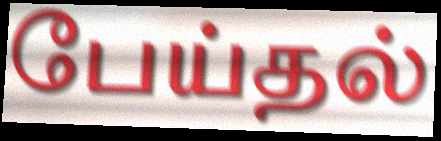
பேய்தல்